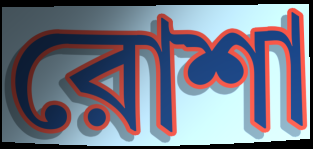
রোশা